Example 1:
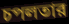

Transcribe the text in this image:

চপলতার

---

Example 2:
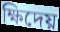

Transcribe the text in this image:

ক্ষিদেয়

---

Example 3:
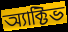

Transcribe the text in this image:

অ্যাক্টিভ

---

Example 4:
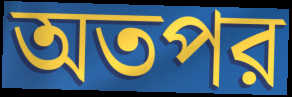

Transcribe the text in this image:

অতপর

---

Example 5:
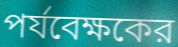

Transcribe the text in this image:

পর্যবেক্ষকের